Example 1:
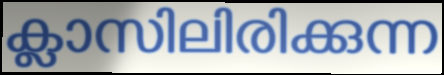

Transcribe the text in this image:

ക്ലാസിലിരിക്കുന്ന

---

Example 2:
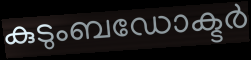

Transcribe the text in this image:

കുടുംബഡോക്ടർ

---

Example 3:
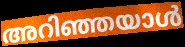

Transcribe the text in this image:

അറിഞ്ഞയാൾ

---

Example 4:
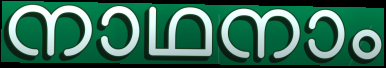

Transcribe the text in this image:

നാഥനാം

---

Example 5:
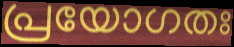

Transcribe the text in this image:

പ്രയോഗതഃ